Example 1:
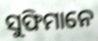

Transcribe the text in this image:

ସୁଫିମାନେ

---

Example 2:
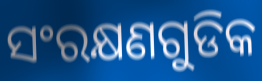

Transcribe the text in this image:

ସଂରକ୍ଷଣଗୁଡିକ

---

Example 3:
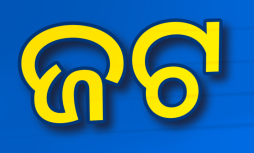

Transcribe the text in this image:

ଜଟ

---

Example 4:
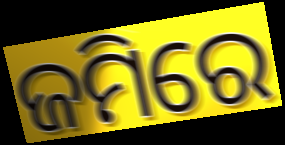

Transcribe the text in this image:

ଜମିରେ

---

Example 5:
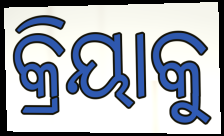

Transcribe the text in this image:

କ୍ରିୟାକୁ